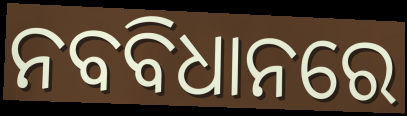
ନବବିଧାନରେ